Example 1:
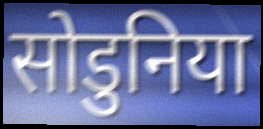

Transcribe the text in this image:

सोडुनिया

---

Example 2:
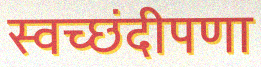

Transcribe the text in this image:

स्वच्छंदीपणा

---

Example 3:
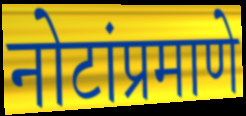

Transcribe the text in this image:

नोटांप्रमाणे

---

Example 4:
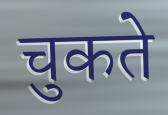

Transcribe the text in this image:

चुकते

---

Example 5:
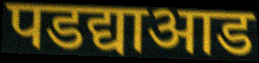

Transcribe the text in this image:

पडद्याआड